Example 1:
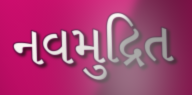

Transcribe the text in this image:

નવમુદ્રિત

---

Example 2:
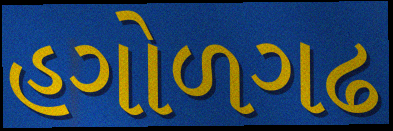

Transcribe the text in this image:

હગોળગઢ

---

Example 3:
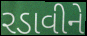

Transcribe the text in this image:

રડાવીને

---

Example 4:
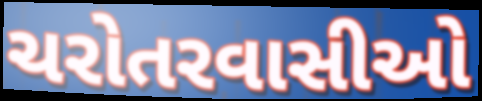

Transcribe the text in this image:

ચરોતરવાસીઓ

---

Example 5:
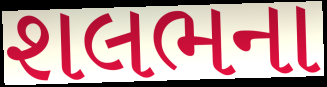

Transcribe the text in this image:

શલભના